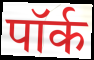
पॉर्क